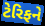
ટેરિફને